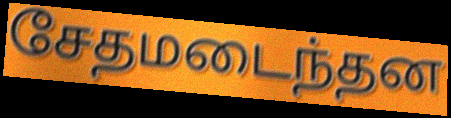
சேதமடைந்தன